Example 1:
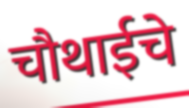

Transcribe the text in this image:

चौथाईचे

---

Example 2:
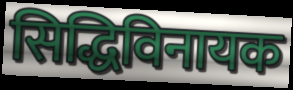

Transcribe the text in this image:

सिद्धिविनायक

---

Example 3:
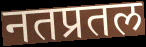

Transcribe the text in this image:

नतप्रतल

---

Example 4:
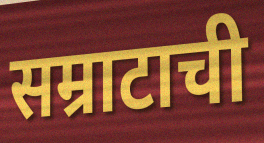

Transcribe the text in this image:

सम्राटाची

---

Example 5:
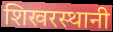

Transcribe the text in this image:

शिखरस्थानी